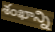
శంఖాన్ని